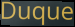
Duque